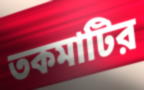
তকমাটির